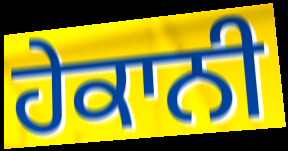
ਹੇਕਾਨੀ